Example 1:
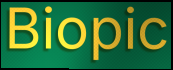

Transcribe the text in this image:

Biopic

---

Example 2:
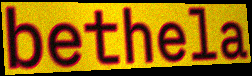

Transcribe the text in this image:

bethela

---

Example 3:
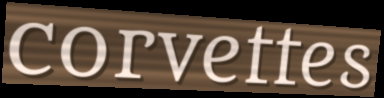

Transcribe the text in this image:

corvettes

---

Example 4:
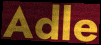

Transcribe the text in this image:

Adle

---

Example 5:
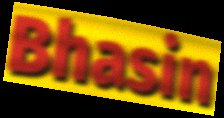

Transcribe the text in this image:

Bhasin